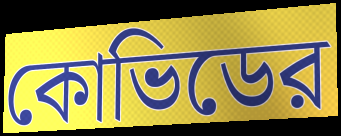
কোভিডের